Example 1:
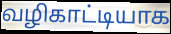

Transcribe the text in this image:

வழிகாட்டியாக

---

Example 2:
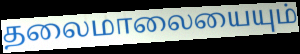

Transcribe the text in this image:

தலைமாலையையும்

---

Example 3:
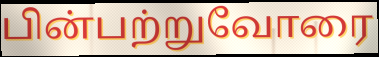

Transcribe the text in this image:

பின்பற்றுவோரை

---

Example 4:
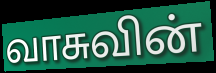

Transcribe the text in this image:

வாசுவின்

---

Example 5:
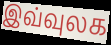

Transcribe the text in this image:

இவ்வுலக